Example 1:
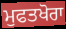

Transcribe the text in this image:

ਮੁਫਤਖੋਰਾ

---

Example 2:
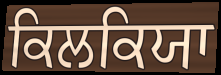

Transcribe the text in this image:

ਕਿਲਕਿਯਾ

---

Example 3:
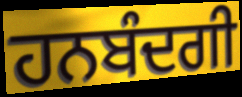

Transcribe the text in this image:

ਹਨਬੰਦਗੀ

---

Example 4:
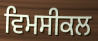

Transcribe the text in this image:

ਵਿਮਸੀਕਲ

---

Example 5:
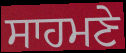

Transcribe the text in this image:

ਸਾਹਮਣੇ